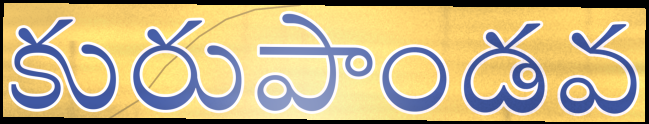
కురుపాండవ